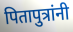
पितापुत्रांनी